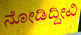
ನೋಡಿದ್ದೀವಿ